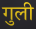
गुली